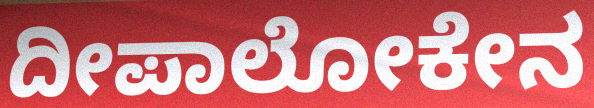
ದೀಪಾಲೋಕೇನ